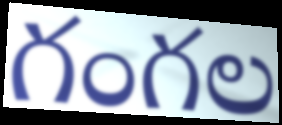
గంగల